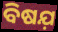
ବିଷଯ଼